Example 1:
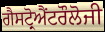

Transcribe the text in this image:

ਗੈਸਟ੍ਰੋਐਂਟਰੌਲੋਜੀ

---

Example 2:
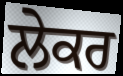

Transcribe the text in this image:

ਲੇਕਰ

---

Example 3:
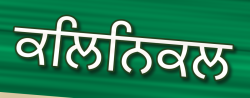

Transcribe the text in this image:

ਕਲਿਨਿਕਲ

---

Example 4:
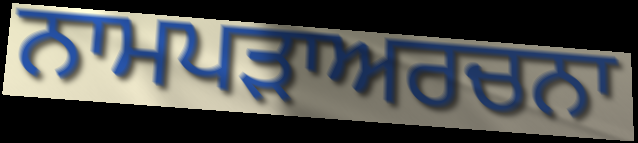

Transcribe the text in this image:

ਨਾਮਪੜਾਅਰਚਨਾ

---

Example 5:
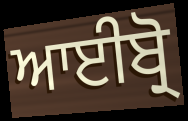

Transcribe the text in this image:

ਆਈਬ੍ਰੋ